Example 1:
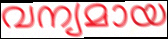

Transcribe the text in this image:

വന്യമായ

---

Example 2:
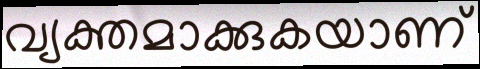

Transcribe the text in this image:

വ്യക്തമാക്കുകയാണ്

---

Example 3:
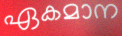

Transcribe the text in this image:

ഏകമാന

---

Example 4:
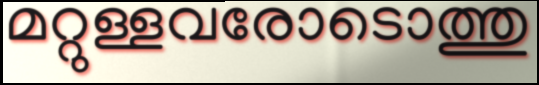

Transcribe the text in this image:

മറ്റുള്ളവരോടൊത്തു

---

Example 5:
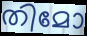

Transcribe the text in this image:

തിമോ